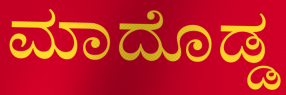
ಮಾದೊಡ್ಡ